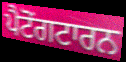
ਪੈਟੋਂਗਟਾਰਨ